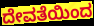
ದೇವತೆಯಿಂದ